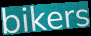
bikers